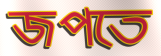
জপতে